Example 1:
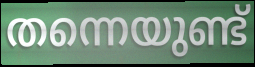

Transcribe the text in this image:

തന്നെയുണ്ട്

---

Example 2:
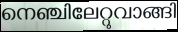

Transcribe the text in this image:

നെഞ്ചിലേറ്റുവാങ്ങി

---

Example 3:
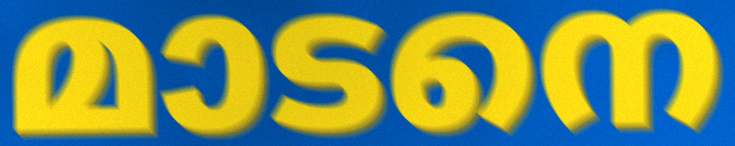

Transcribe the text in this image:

മാടനെ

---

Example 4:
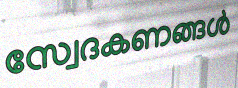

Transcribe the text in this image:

സ്വേദകണങ്ങൾ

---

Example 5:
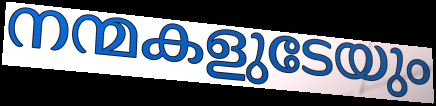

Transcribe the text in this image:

നന്മകളുടേയും